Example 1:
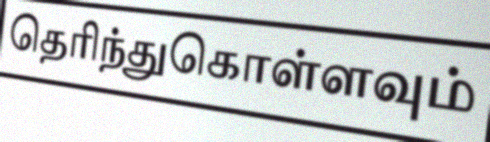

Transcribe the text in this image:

தெரிந்துகொள்ளவும்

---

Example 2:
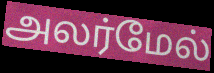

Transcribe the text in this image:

அலர்மேல்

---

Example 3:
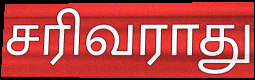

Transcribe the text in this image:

சரிவராது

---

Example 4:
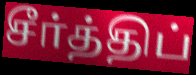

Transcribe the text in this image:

சீர்த்திப்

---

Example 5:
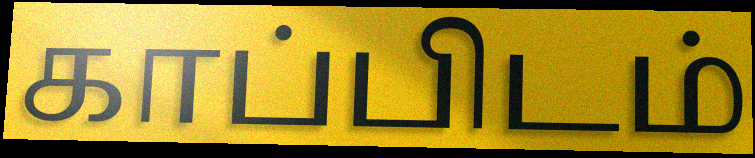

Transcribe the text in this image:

காப்பிடம்